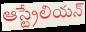
ఆస్ట్రేలియన్